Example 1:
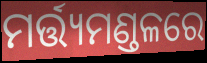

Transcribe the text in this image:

ମର୍ତ୍ତ୍ୟମଣ୍ଡଳରେ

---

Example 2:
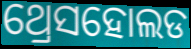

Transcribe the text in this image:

ଥ୍ରେସହୋଲଡ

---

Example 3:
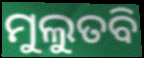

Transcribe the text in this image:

ମୁଲୁତବି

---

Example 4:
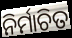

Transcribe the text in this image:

ନିର୍ମାଚିତ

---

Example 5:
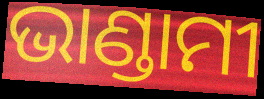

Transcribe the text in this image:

ଭାଣ୍ଡାମୀ